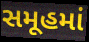
સમૂહમાં